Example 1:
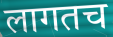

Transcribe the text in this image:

लागतच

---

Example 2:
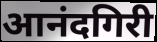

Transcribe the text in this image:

आनंदगिरी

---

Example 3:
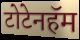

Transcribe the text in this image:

टोटेनहॅम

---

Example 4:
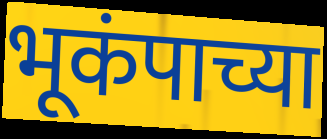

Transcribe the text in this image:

भूकंपाच्या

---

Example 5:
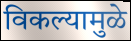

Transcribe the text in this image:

विकल्यामुळे